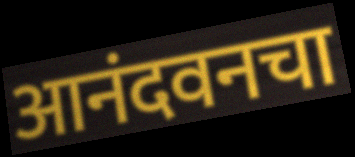
आनंदवनचा